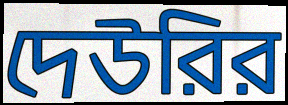
দেউরির